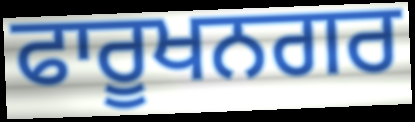
ਫਾਰੂਖਨਗਰ